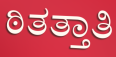
ಠಿತತ್ತಾತಿ